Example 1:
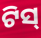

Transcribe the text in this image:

ଟିସ୍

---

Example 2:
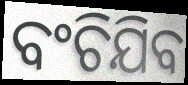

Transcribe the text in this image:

ବଂଚିଯିବ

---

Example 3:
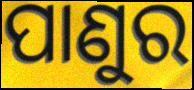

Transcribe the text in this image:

ପାଣୁର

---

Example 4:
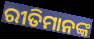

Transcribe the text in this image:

ରୀତିମାନଙ୍କ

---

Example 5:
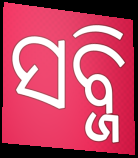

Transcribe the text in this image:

ସବ୍ଜି